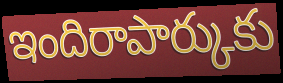
ఇందిరాపార్కుకు